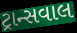
ટ્રાન્સવાલ